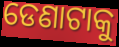
ଡେଣାଟାକୁ